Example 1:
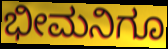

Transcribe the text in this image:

ಭೀಮನಿಗೂ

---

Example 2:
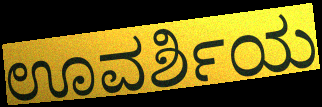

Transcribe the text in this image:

ಊವರ್ಶಿಯ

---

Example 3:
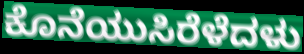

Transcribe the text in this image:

ಕೊನೆಯುಸಿರೆಳೆದಳು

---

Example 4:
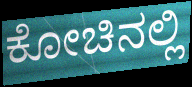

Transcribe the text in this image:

ಕೋಚಿನಲ್ಲಿ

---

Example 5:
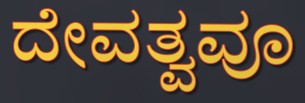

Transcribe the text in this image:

ದೇವತ್ವವೂ